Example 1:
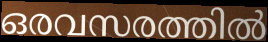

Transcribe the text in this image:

ഒരവസരത്തിൽ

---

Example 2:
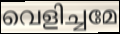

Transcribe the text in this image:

വെളിച്ചമേ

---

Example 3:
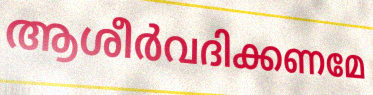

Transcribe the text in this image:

ആശീർവദിക്കണമേ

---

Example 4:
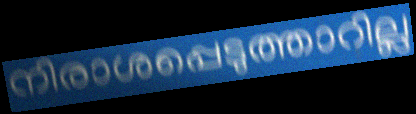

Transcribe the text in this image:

നിരാശപ്പെടുത്താറില്ല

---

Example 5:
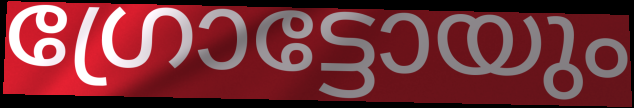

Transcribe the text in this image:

ഗ്രോട്ടോയും